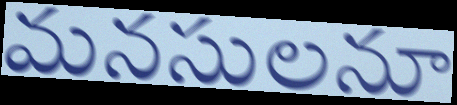
మనసులనూ